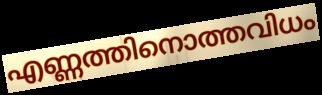
എണ്ണത്തിനൊത്തവിധം